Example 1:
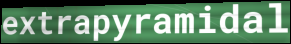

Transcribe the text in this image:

extrapyramidal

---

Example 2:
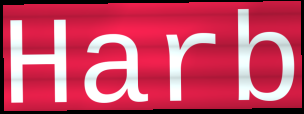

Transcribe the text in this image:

Harb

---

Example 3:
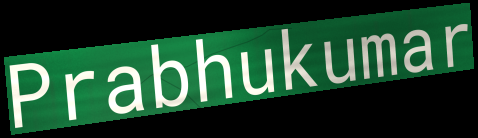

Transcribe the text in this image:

Prabhukumar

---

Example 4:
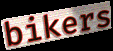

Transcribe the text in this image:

bikers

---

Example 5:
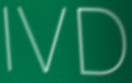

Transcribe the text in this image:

IVD